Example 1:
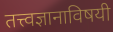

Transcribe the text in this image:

तत्त्वज्ञानाविषयी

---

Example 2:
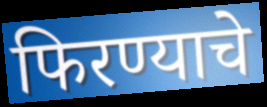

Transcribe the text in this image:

फिरण्याचे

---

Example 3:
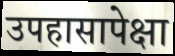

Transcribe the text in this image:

उपहासापेक्षा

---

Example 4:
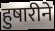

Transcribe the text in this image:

हुषारीने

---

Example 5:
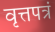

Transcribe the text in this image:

वृत्तपत्रं